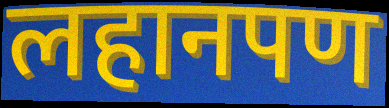
लहानपण